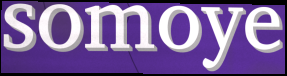
somoye